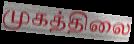
முகத்திலை